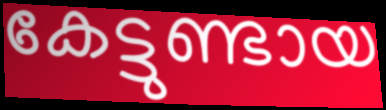
കേട്ടുണ്ടായ